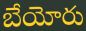
బేయోరు